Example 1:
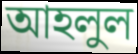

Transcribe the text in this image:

আহলুল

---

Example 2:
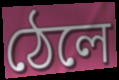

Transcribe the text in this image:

ঠেলে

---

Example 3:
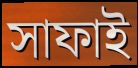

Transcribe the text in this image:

সাফাই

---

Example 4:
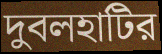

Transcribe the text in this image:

দুবলহাটির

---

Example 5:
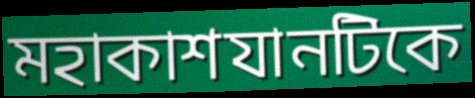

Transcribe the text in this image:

মহাকাশযানটিকে